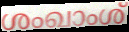
ശംഖാംശ്